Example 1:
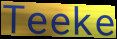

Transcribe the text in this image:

Teeke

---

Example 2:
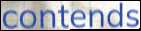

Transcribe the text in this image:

contends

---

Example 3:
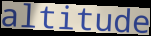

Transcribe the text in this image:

altitude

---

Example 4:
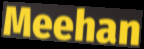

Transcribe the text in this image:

Meehan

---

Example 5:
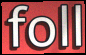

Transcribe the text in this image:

foll